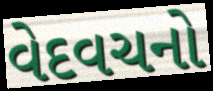
વેદવચનો